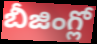
బీజింగ్లో